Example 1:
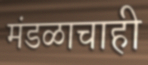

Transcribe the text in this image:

मंडळाचाही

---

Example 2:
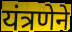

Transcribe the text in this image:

यंत्रणेने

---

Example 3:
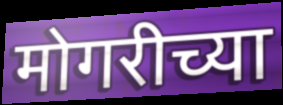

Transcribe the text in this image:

मोगरीच्या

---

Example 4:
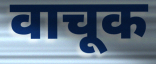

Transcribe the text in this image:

वाचूक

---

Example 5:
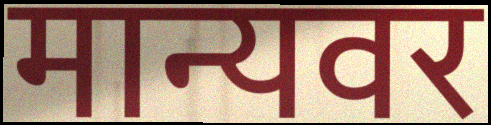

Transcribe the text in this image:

मान्यवर